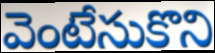
వెంటేసుకొని